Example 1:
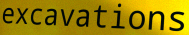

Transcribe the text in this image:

excavations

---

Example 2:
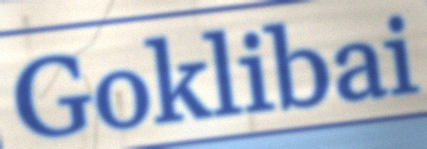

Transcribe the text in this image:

Goklibai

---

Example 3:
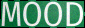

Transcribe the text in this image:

MOOD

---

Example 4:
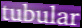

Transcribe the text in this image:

tubular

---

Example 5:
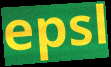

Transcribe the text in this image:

epsl